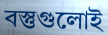
বস্তুগুলোই